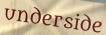
underside